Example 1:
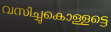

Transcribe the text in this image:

വസിച്ചുകൊള്ളട്ടെ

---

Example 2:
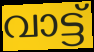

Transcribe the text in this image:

വാട്ട്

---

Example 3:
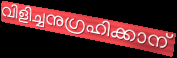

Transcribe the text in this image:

വിളിച്ചനുഗ്രഹിക്കാന്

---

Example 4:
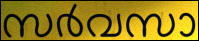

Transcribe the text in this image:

സർവസാ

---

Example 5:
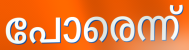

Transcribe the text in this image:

പോരെന്ന്